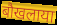
बौखलाया